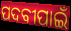
ପଦବୀପାଇଁ